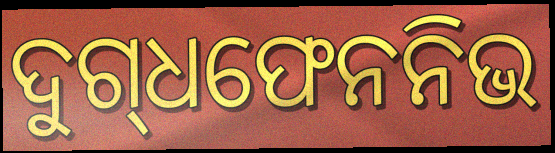
ଦୁଗ୍‍ଧଫେନନିଭ